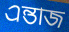
এন্তাজ